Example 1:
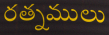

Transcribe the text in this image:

రత్నములు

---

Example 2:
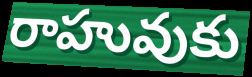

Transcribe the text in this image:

రాహువుకు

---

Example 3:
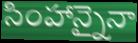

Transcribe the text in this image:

సింహాన్నైనా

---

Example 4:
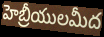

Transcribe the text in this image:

హెబ్రీయులమీద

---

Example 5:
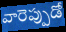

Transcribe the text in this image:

వారెప్పుడో